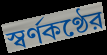
স্বর্ণকণ্ঠের